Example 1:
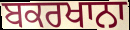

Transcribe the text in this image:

ਬਕਰਖਾਨਾ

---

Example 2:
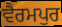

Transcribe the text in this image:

ਵੈਰਮਪੁਰ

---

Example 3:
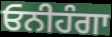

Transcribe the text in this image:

ਓਨੀਹੰਗਾ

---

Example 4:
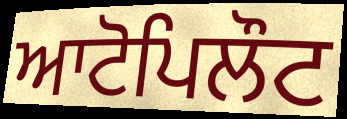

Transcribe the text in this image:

ਆਟੋਪਿਲੌਟ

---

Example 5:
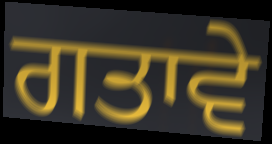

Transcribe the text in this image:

ਗਤਾਵੇ